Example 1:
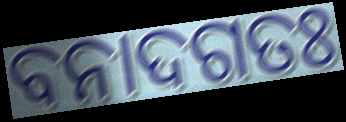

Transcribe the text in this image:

ବନାଦଗତଃ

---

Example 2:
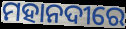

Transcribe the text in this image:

ମହାନଦୀରେ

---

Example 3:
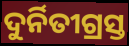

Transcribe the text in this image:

ଦୁର୍ନିତୀଗ୍ରସ୍ତ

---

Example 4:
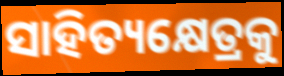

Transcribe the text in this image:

ସାହିତ୍ୟକ୍ଷେତ୍ରକୁ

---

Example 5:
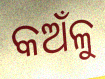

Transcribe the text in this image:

କଅଁଳୁ